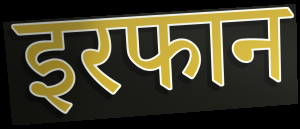
इरफान